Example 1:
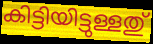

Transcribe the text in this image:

കിട്ടിയിട്ടുള്ളതു്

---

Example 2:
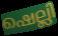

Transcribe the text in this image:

ഷെല്ലി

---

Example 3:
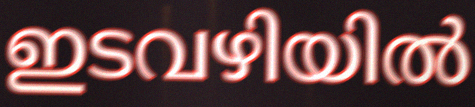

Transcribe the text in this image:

ഇടവഴിയിൽ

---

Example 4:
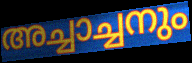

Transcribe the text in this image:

അച്ചാച്ചനും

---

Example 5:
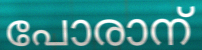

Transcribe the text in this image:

പോരാന്